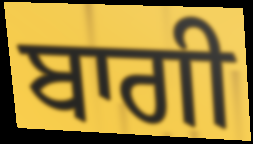
ਬਾਗੀ